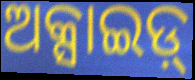
ଅକ୍ସାଇଡ଼୍